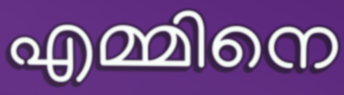
എമ്മിനെ